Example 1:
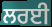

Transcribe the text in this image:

ਲਰਈ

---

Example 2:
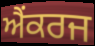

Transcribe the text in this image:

ਐਂਕਰਜ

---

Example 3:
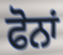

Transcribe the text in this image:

ਫੋਨਾਂ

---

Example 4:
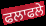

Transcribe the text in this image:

ਫਲਾਫਲੇ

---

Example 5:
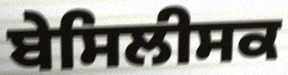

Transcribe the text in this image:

ਬੇਸਿਲੀਸਕ